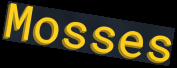
Mosses